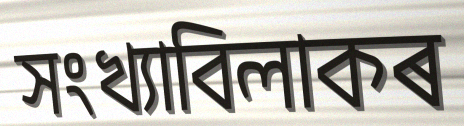
সংখ্যাবিলাকৰ